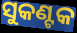
ସୁକଣ୍ଟକ